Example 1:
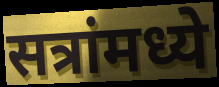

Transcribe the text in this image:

सत्रांमध्ये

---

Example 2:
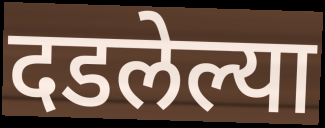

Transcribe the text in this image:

दडलेल्या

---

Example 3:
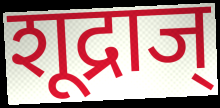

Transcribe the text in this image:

शूद्राज्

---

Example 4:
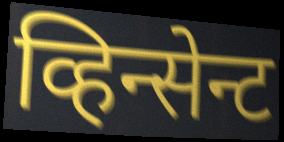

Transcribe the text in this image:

व्हिन्सेन्ट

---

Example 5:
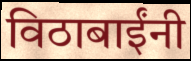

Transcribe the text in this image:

विठाबाईंनी